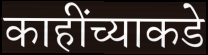
काहींच्याकडे